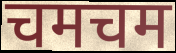
चमचम